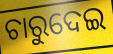
ଚାରୁଦେଇ